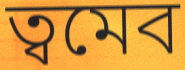
ত্বমেব